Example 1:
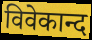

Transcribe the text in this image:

विवेकान्द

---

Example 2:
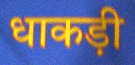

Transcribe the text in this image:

धाकड़ी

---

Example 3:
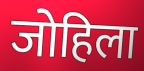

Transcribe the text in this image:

जोहिला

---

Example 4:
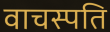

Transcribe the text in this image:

वाचस्पति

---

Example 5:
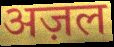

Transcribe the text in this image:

अज़ल